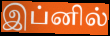
இப்னில்